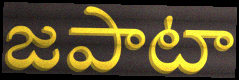
జపాటా